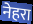
नेहरा